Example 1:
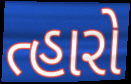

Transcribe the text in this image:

ત્હારો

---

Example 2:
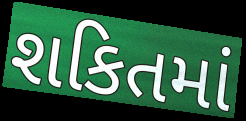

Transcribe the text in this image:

શકિતમાં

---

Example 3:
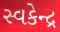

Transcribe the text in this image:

સ્વકેન્દ્ર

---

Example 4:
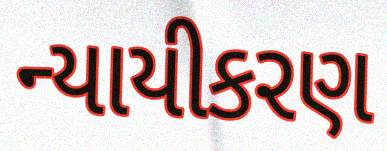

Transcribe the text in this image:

ન્યાયીકરણ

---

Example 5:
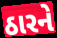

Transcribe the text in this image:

ઠારને